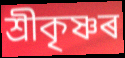
শ্ৰীকৃষ্ণৰ